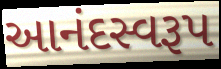
આનંદસ્વરૂપ